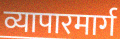
व्यापारमार्ग